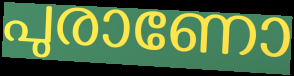
പുരാണോ